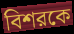
বিশরকে